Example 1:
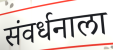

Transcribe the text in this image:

संवर्धनाला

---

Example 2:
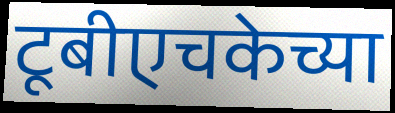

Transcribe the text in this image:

टूबीएचकेच्या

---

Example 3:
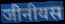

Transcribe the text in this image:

जीनीयस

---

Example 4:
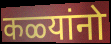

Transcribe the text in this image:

कळ्यांनो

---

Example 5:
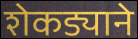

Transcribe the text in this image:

शेकड्याने